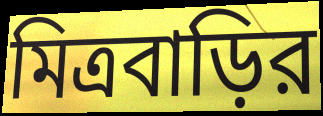
মিত্রবাড়ির